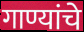
गाण्यांचे